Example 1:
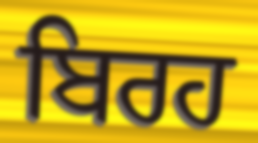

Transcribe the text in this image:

ਬਿਰਹ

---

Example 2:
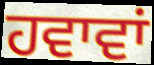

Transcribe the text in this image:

ਹਵਾਵਾਂ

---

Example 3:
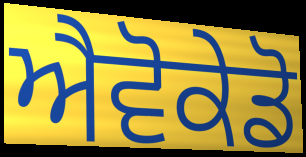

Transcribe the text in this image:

ਐਵੋਕੇਡੋ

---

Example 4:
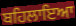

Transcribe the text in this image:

ਬਹਿਲਾਇਆ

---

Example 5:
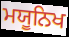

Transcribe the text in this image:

ਮਯੂਨਿਖ